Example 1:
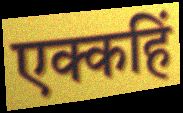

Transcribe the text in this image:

एक्कहिं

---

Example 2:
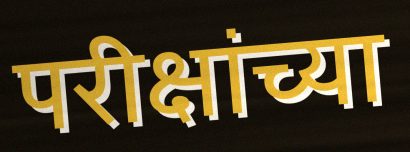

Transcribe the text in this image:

परीक्षांच्या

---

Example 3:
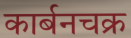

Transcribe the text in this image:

कार्बनचक्र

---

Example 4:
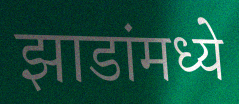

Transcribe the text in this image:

झाडांमध्ये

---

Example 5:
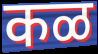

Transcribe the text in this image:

कळ